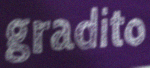
gradito